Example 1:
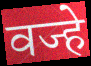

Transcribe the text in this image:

वज्हे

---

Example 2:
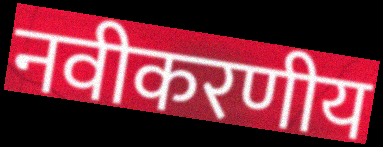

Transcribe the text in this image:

नवीकरणीय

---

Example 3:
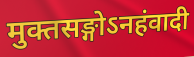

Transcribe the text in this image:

मुक्तसङ्गोऽनहंवादी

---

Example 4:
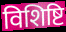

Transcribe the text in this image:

विशिष्टि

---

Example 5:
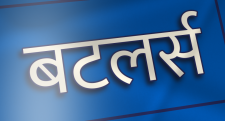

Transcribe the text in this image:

बटलर्स